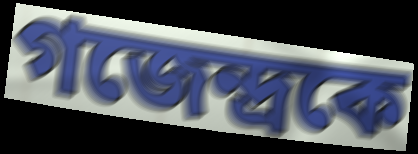
গজেন্দ্রকে